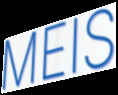
MEIS